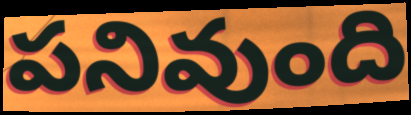
పనివుంది